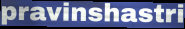
pravinshastri